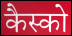
कैस्को